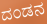
ದಂಡನ